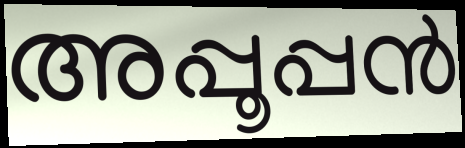
അപ്പൂപ്പൻ